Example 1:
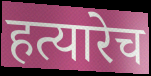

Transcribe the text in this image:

हत्यारेच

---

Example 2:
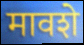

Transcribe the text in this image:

मावशे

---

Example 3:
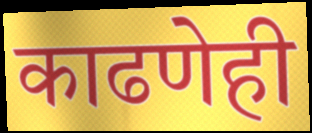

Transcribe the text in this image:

काढणेही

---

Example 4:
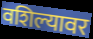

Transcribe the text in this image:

वशिल्यावर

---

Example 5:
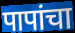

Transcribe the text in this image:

पापांचा